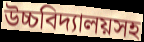
উচ্চবিদ্যালয়সহ